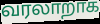
வரலாறாக